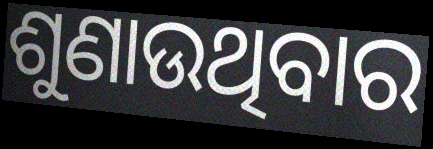
ଶୁଣାଉଥିବାର